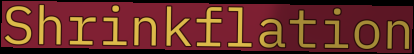
Shrinkflation